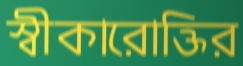
স্বীকারোক্তির